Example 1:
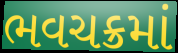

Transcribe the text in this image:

ભવચક્રમાં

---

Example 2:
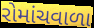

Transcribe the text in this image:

રોમાંચવાળા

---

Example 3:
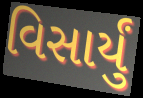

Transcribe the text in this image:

વિસાર્યું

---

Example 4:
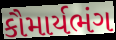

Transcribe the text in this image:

કૌમાર્યભંગ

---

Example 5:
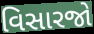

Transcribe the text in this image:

વિસારજો